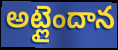
అట్లైందాన